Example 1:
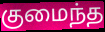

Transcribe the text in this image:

குமைந்த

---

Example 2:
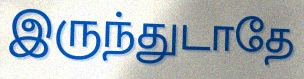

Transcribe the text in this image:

இருந்துடாதே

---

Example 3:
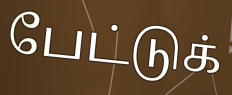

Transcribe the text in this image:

பேட்டுக்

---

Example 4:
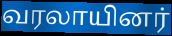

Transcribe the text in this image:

வரலாயினர்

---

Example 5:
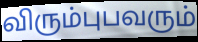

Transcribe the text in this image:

விரும்புபவரும்